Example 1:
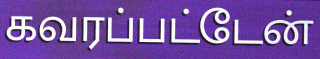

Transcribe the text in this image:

கவரப்பட்டேன்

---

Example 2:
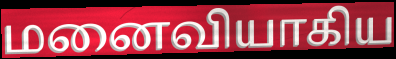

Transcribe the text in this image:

மனைவியாகிய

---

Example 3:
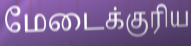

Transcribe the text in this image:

மேடைக்குரிய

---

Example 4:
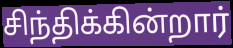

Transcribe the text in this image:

சிந்திக்கின்றார்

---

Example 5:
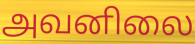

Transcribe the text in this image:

அவனிலை